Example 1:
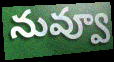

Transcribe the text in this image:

నువ్వూ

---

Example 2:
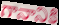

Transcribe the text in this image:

గానానికి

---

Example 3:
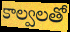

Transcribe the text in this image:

కాల్వలతో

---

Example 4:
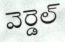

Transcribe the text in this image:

వెర్డెల్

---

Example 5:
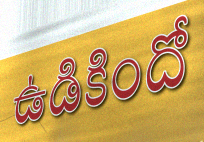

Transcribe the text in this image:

ఉడికిందో